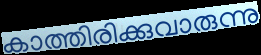
കാത്തിരിക്കുവാരുന്നു